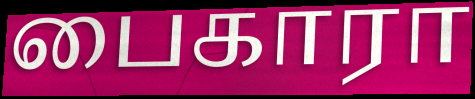
பைகாரா